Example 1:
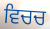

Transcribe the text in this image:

ਵਿਚਚ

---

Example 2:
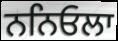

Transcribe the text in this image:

ਨਨਿਓਲਾ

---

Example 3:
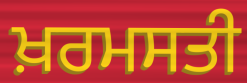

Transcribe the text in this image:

ਖ਼ਰਮਸਤੀ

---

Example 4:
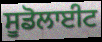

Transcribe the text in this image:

ਸੂਡੋਲਾਈਟ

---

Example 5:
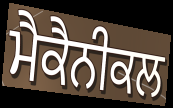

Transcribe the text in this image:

ਮੈਕੈਨੀਕਲ